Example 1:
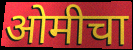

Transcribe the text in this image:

ओमीचा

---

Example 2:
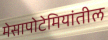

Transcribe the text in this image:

मेसापोटेमियांतील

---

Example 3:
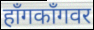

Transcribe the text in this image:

हाँगकाँगवर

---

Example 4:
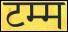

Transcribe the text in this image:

टम्म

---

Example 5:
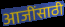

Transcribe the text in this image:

आजींसाठी